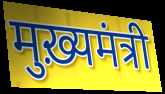
मुख़्यमंत्री